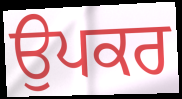
ਉਪਕਰ